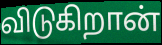
விடுகிறான்